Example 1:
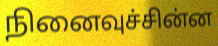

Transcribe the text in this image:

நினைவுச்சின்ன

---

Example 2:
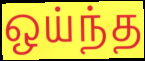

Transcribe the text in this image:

ஒய்ந்த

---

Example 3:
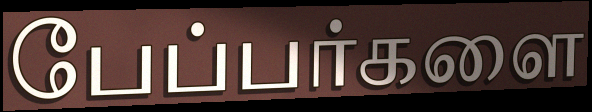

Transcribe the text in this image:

பேப்பர்களை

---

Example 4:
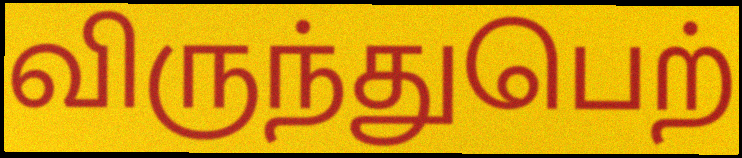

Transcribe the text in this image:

விருந்துபெற்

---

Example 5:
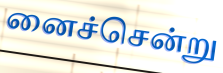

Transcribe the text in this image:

னைச்சென்று